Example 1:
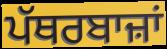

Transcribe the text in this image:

ਪੱਥਰਬਾਜ਼ਾਂ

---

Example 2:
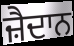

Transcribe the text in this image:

ਜ਼ੈਦਾਨ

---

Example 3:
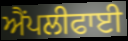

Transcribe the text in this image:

ਐਂਪਲੀਫਾਈ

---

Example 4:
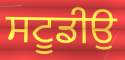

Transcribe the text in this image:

ਸਟੂਡੀਉ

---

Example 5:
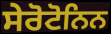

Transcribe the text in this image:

ਸੇਰੋਟੋਨਿਨ